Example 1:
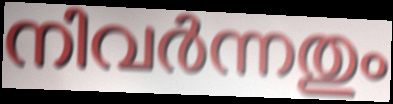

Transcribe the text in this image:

നിവർന്നതും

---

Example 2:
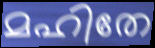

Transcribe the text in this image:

മഹിതേ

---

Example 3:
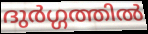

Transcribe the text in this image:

ദുർഗ്ഗത്തിൽ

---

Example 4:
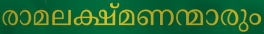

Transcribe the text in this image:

രാമലക്ഷ്മണന്മാരും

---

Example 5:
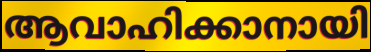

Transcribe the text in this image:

ആവാഹിക്കാനായി